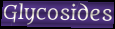
Glycosides